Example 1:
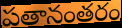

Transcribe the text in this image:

పతానంతరం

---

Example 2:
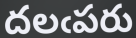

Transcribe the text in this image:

దలఁపరు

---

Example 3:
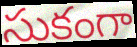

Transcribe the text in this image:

సుకంగా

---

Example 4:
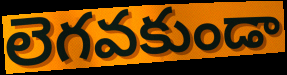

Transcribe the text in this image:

లెగవకుండా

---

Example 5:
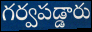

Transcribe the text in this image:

గర్వపడ్డారు